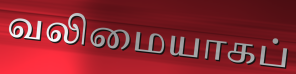
வலிமையாகப்